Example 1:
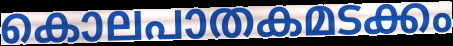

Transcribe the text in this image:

കൊലപാതകമടക്കം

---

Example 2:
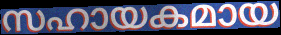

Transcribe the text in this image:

സഹായകമായ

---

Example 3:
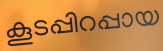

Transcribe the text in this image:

കൂടപ്പിറപ്പായ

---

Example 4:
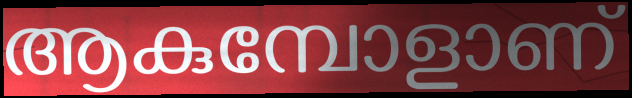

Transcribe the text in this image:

ആകുമ്പോളാണ്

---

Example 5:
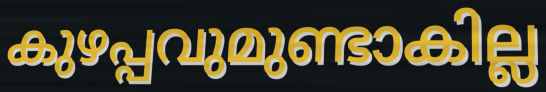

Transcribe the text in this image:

കുഴപ്പവുമുണ്ടാകില്ല